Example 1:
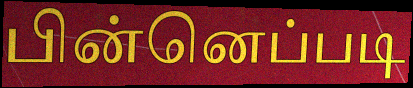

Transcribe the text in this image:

பின்னெப்படி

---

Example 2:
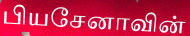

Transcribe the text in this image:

பியசேனாவின்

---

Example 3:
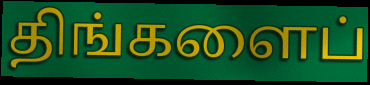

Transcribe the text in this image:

திங்களைப்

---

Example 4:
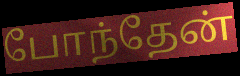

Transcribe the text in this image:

போந்தேன்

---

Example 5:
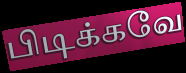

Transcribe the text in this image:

பிடிக்கவே